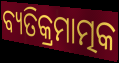
ବ୍ୟତିକ୍ରମାତ୍ମକ